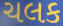
ચલક